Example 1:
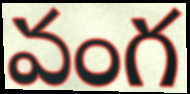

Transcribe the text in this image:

వంగ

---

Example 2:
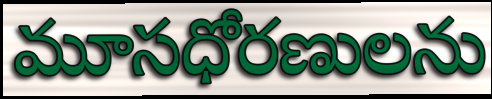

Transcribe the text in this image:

మూసధోరణులను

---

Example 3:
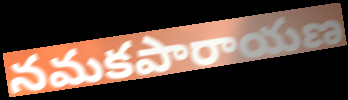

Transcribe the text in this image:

నమకపారాయణ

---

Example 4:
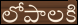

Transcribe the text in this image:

లోపాలకి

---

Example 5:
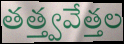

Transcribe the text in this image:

తత్త్వవేత్తల